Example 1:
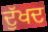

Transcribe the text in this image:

ਦੁੱਖਦ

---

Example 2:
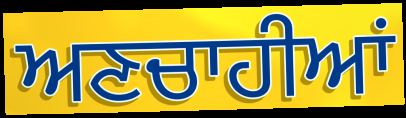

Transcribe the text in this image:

ਅਣਚਾਹੀਆਂ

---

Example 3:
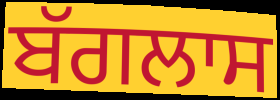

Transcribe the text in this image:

ਬੱਗਲਾਸ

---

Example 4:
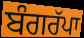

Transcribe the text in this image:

ਬੰਗਰੱਪਾ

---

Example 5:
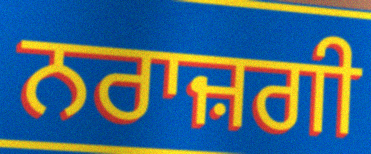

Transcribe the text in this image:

ਨਰਾਜ਼ਗੀ